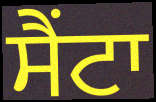
ਸੈਂਟਾ